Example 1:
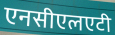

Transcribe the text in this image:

एनसीएलएटी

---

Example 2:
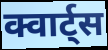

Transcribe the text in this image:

क्वार्ट्स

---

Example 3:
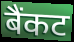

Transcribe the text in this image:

बैंकट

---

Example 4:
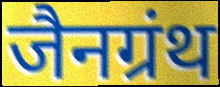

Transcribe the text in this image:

जैनग्रंथ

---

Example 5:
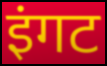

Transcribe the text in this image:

इंगट